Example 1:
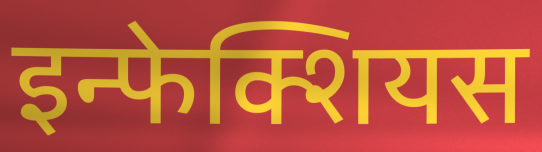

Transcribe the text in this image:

इन्फेक्शियस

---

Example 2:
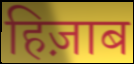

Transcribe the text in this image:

हिज़ाब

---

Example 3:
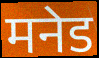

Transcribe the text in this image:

मनेड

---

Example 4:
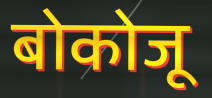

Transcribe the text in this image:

बोकोजू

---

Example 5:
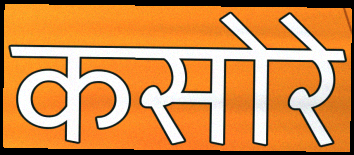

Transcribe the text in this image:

कसोरे